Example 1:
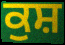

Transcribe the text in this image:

ਕੁਸ਼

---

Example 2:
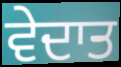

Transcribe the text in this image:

ਵੇਦਾਤ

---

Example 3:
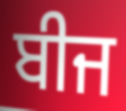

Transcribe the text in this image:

ਬੀਜ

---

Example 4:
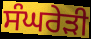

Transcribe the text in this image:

ਸੰਘਰੇੜੀ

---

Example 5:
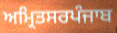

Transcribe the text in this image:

ਅਮ੍ਰਿਤਸਰਪੰਜਾਬ